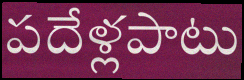
పదేళ్లపాటు